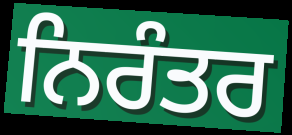
ਨਿਰੰਤਰ